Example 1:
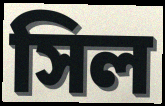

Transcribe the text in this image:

সিল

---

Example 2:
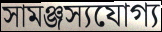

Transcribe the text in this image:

সামঞ্জস্যযোগ্য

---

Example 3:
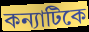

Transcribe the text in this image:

কন্যাটিকে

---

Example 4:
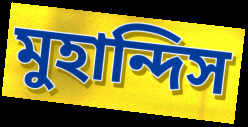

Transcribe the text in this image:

মুহান্দিস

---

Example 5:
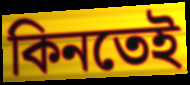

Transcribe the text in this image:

কিনতেই